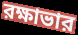
রক্ষাভার